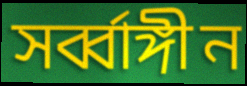
সর্ব্বাঙ্গীন